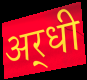
अर्धी